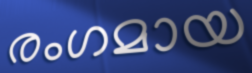
രംഗമായ